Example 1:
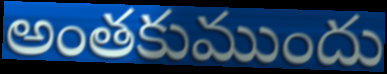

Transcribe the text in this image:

అంతకుముందు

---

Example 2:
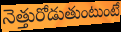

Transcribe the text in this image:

నెత్తురోడుతుంటుంటే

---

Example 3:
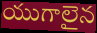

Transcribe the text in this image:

యుగాలైన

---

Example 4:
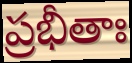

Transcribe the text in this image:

ప్రభీతాః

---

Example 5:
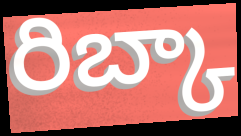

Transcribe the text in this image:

రిబ్కా